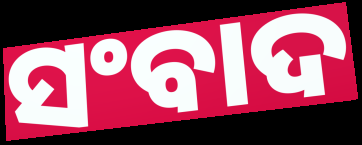
ସଂବାଦ